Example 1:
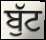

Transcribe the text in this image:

ਬੁੱਟ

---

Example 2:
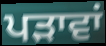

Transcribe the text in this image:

ਪੜਾਵਾਂ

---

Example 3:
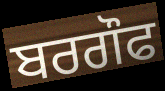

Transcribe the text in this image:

ਬਰਗੌਫ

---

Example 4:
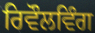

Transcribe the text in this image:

ਰਿਵੌਲਵਿੰਗ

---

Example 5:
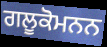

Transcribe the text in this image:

ਗਲੂਕੋਮਨਨ